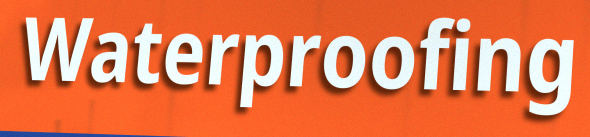
Waterproofing